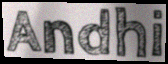
Andhi